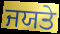
ਜਯਤੇ